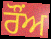
ਰੌਂਅ